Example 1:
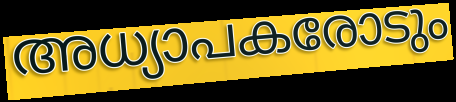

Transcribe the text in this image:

അധ്യാപകരോടും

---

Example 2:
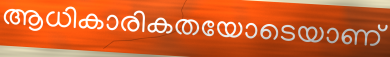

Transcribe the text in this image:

ആധികാരികതയോടെയാണ്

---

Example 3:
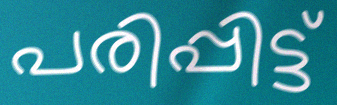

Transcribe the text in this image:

പരിപ്പിട്ട്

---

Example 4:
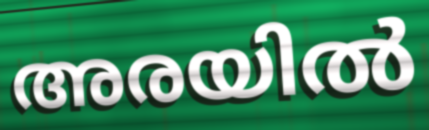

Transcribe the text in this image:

അരയിൽ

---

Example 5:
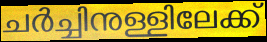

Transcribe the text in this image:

ചർച്ചിനുള്ളിലേക്ക്